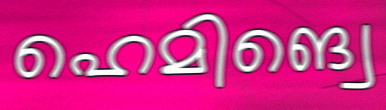
ഹെമിങ്വെ